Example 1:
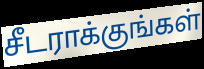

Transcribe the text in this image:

சீடராக்குங்கள்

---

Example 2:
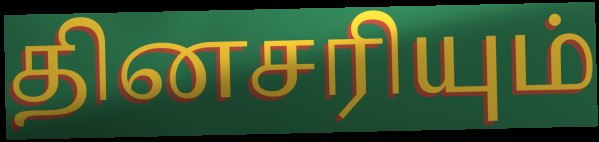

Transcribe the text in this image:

தினசரியும்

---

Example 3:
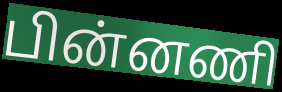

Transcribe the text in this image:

பின்னணி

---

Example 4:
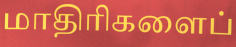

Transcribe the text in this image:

மாதிரிகளைப்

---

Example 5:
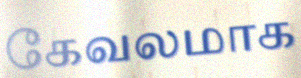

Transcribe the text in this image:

கேவலமாக